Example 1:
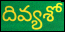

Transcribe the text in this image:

దివ్యశో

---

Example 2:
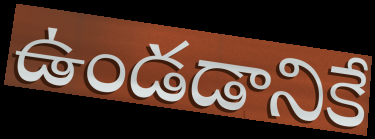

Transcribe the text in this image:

ఉండడానికే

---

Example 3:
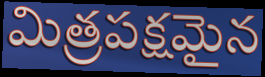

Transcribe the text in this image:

మిత్రపక్షమైన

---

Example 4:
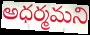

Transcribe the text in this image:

అధర్మమని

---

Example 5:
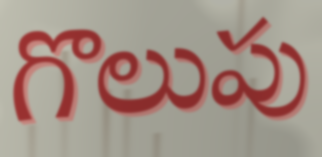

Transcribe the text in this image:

గొలుపు